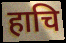
हाचि